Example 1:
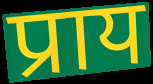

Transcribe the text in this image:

प्राय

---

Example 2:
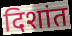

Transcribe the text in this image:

दिशांत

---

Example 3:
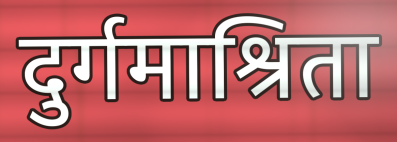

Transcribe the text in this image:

दुर्गमाश्रिता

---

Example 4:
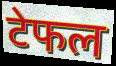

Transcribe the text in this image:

टेफल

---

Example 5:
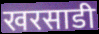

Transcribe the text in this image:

खरसाडी